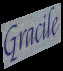
Gracile